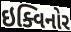
ઇક્વિનોર